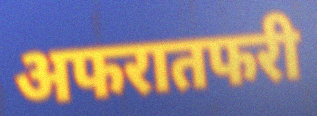
अफरातफरी